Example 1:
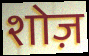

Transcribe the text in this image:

शोज़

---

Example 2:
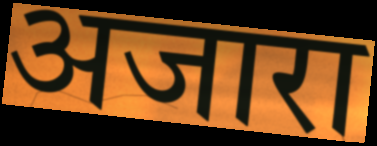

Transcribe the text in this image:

अजारा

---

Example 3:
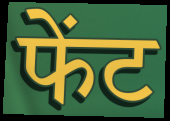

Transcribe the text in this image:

फेंट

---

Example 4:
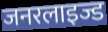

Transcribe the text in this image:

जनरलाइज्ड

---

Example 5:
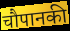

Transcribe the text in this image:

चौपानकी